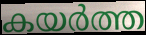
കയർത്ത